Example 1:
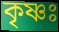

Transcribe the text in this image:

কৃষ্ণঃ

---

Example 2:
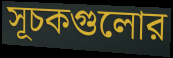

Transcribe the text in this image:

সূচকগুলোর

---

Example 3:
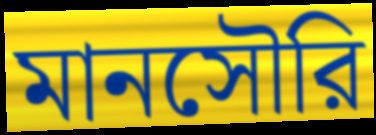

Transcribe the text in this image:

মানসৌরি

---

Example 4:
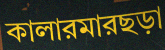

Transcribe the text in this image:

কালারমারছড়া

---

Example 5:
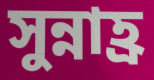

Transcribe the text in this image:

সুন্নাহ্র